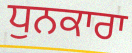
ਧੁਨਕਾਰਾ